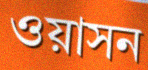
ওয়াসন